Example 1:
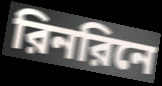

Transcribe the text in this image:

রিনরিনে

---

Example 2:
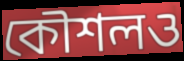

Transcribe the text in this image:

কৌশলও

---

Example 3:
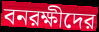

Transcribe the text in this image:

বনরক্ষীদের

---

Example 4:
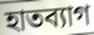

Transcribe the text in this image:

হাতব্যাগ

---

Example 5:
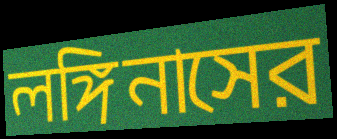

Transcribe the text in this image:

লঙ্গিনাসের